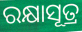
ରକ୍ଷାସୂତ୍ର